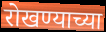
रोखण्याच्या